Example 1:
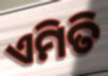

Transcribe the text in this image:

ଏମିତି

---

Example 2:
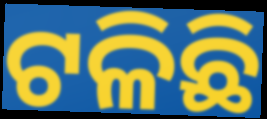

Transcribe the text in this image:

ଟଳିଛି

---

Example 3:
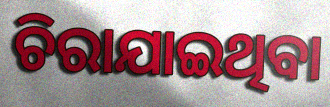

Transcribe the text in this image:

ଚିରାଯାଇଥିବା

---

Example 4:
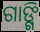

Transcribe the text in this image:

ଗାଙ୍ଗି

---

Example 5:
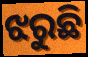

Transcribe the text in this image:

ଝରୁଛି